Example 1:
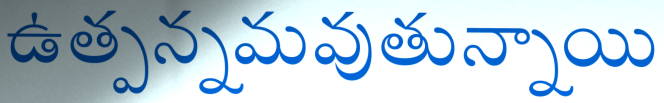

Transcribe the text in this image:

ఉత్పన్నమవుతున్నాయి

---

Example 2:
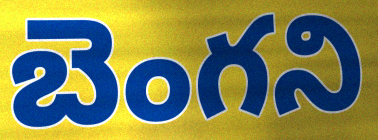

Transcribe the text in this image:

బెంగని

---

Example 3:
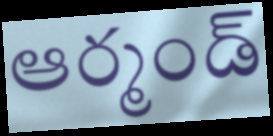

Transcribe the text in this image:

ఆర్మండ్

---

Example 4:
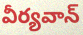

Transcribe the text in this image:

వీర్యవాన్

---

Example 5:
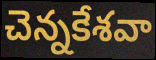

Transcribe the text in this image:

చెన్నకేశవా